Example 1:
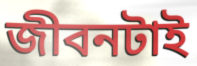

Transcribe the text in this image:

জীবনটাই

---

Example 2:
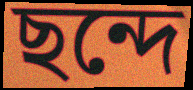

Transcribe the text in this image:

ছন্দে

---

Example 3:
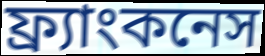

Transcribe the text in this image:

ফ্র্যাংকনেস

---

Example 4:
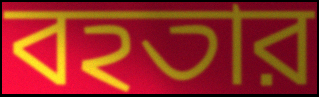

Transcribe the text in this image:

বহতার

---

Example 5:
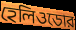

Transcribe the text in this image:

হেলিওডোর